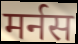
मर्नस